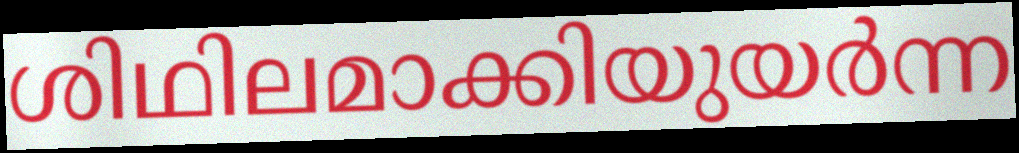
ശിഥിലമാക്കിയുയർന്ന